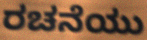
ರಚನೆಯು